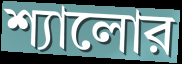
শ্যালোর